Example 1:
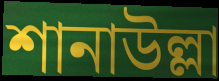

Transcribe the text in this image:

শানাউল্লা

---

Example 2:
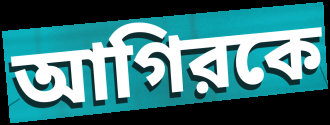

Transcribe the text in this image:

আগিরকে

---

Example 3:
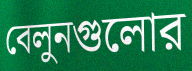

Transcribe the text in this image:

বেলুনগুলোর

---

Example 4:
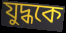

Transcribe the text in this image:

যুদ্ধকে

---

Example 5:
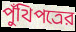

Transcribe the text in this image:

পুঁথিপত্রের